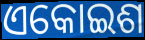
ଏକୋଇଶ